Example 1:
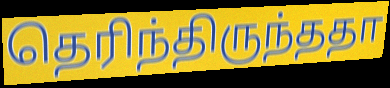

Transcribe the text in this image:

தெரிந்திருந்ததா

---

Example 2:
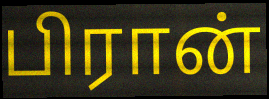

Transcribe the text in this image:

பிரான்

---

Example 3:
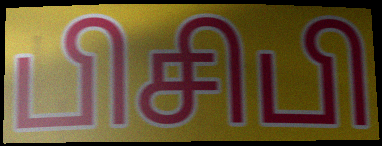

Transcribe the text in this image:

பிசிபி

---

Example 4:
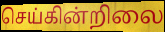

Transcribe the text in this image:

செய்கின்றிலை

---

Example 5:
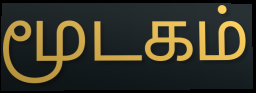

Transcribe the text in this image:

மூடகம்